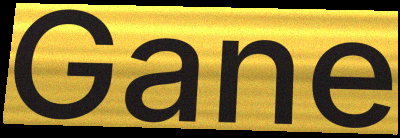
Gane